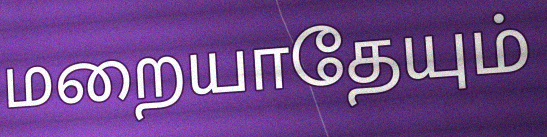
மறையாதேயும்